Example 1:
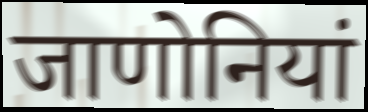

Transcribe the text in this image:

जाणोनियां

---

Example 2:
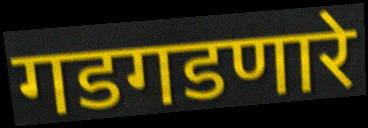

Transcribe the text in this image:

गडगडणारे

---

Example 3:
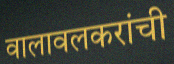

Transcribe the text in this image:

वालावलकरांची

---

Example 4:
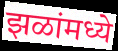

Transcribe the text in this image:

झळांमध्ये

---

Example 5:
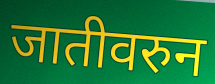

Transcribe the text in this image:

जातीवरुन